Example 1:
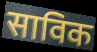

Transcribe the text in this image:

साविक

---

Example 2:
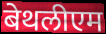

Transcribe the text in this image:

बेथलीएम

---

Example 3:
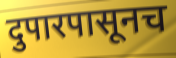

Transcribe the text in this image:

दुपारपासूनच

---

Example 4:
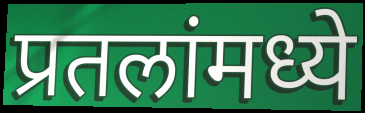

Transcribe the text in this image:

प्रतलांमध्ये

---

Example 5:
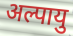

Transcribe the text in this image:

अल्पायु